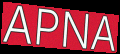
APNA